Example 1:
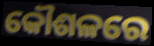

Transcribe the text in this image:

କୌଶଳରେ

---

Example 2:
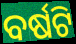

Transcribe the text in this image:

ବର୍ଷଟି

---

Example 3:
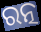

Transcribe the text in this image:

ରତ୍ନ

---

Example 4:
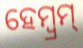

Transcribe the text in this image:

ହେମ୍ବ୍ରମ୍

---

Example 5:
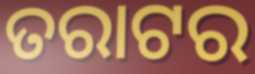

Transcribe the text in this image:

ତରାଟର